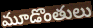
మూడొంతులు